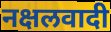
नक्षलवादी